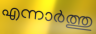
എന്നാർത്തു